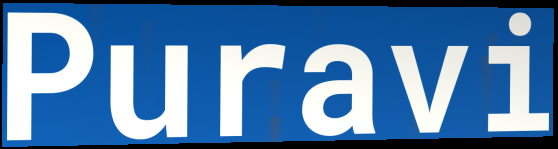
Puravi